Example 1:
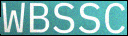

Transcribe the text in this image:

WBSSC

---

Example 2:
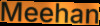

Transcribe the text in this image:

Meehan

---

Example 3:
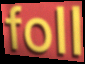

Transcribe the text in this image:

foll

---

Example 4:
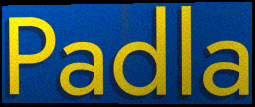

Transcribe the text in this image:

Padla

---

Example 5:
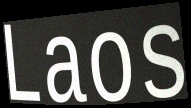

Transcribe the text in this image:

Laos